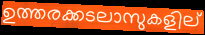
ഉത്തരക്കടലാസുകളില്